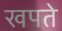
खपते